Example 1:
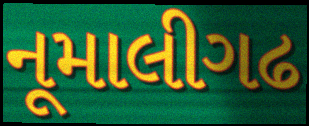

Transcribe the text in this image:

નૂમાલીગઢ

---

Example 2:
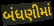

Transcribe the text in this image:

બંધણીમાં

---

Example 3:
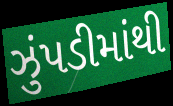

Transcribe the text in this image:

ઝુંપડીમાંથી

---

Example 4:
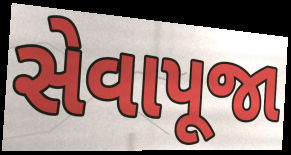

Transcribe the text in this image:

સેવાપૂજા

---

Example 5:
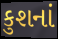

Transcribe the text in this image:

કુશનાં